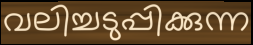
വലിച്ചടുപ്പിക്കുന്ന